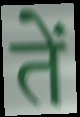
तें